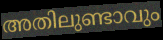
അതിലുണ്ടാവും